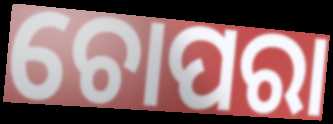
ଚୋପରା